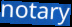
notary